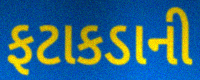
ફટાકડાની